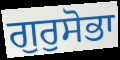
ਗੁਰੁਸੋਭਾ